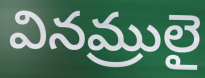
వినమ్రులై